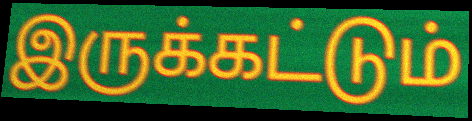
இருக்கட்டும்